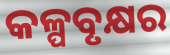
କଳ୍ପବୃକ୍ଷର